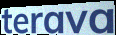
terava